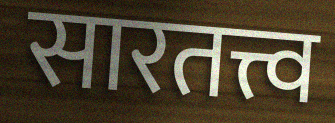
सारतत्त्व